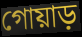
গোয়াড়